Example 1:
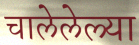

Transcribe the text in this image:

चालेलेल्या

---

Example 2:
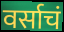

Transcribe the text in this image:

वर्साचं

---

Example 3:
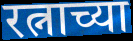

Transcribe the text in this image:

रत्नाच्या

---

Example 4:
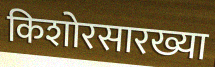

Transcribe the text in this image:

किशोरसारख्या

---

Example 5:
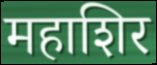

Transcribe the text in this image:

महाशिर